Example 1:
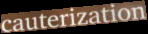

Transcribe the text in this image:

cauterization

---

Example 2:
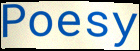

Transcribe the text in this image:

Poesy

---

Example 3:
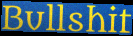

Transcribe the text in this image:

Bullshit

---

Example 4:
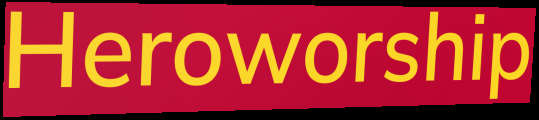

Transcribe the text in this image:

Heroworship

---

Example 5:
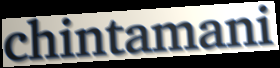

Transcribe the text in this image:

chintamani